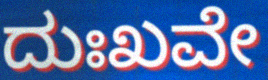
ದುಃಖವೇ